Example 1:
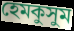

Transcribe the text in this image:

হেমকুসুম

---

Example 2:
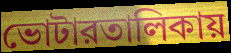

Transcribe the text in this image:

ভোটারতালিকায়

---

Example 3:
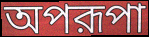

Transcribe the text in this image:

অপরূপা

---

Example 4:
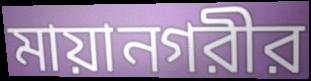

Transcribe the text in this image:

মায়ানগরীর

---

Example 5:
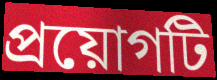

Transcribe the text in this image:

প্রয়োগটি